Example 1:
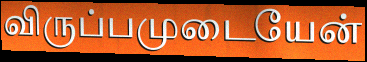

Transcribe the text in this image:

விருப்பமுடையேன்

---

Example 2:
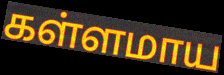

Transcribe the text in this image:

கள்ளமாய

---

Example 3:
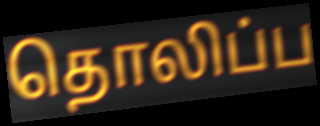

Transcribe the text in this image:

தொலிப்ப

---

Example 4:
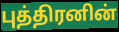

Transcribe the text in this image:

புத்திரனின்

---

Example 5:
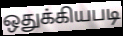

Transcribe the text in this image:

ஒதுக்கியபடி